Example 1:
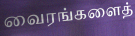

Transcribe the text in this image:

வைரங்களைத்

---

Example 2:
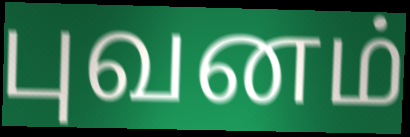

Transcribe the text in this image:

புவனம்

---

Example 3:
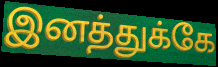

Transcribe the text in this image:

இனத்துக்கே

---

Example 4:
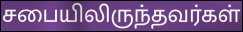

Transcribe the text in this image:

சபையிலிருந்தவர்கள்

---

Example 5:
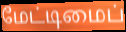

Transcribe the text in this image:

மேட்டிமைப்